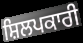
ਸ਼ਿਲਪਕਾਰੀ